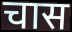
चास